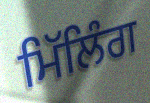
ਮਿੱਲਿੰਗ